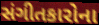
સંગીતકારોના